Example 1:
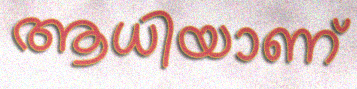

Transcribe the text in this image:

ആധിയാണ്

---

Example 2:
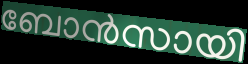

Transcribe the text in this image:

ബോൻസായി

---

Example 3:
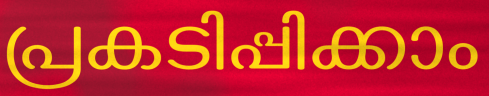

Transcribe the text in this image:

പ്രകടിപ്പിക്കാം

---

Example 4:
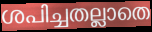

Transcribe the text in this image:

ശപിച്ചതല്ലാതെ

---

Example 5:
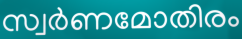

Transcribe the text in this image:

സ്വർണമോതിരം